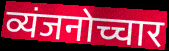
व्यंजनोच्चार